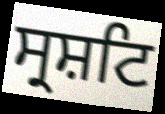
ਸ੍ਰਸ਼ਟਿ